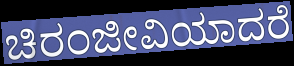
ಚಿರಂಜೀವಿಯಾದರೆ